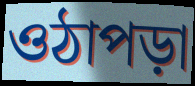
ওঠাপড়া